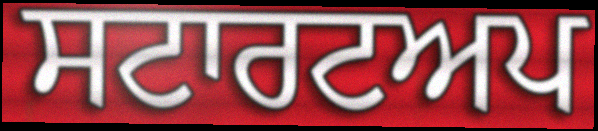
ਸਟਾਰਟਅਪ